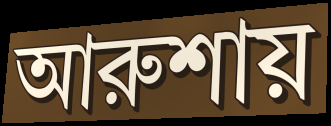
আরুশায়